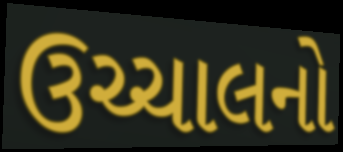
ઉચ્ચાલનો